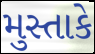
મુસ્તાકે